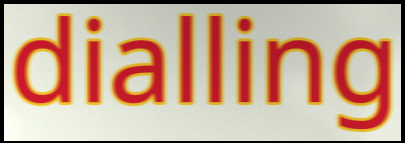
dialling